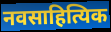
नवसाहित्यिक